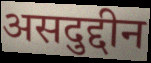
असदुद्दीन